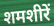
शमशीरें